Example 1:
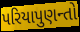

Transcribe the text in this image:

પરિયાપુણન્તો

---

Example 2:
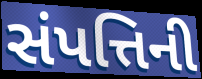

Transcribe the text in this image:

સંપત્તિની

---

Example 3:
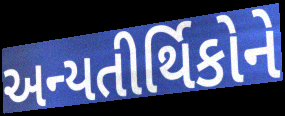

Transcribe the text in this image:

અન્યતીર્થિકોને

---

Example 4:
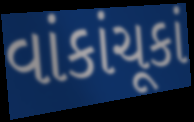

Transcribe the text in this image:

વાંકાંચૂકાં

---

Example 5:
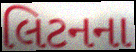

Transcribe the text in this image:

લિટનના